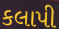
કલાપી